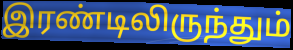
இரண்டிலிருந்தும்